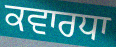
ਕਵਾਰਧਾ